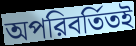
অপরিবর্তিতই